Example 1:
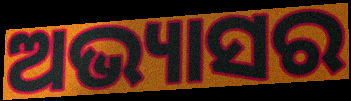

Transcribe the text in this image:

ଅଭ୍ୟାସର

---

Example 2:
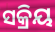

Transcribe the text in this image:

ସକ୍ରିୟ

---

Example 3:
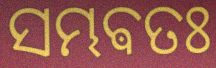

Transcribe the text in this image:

ସମ୍ଭଵତଃ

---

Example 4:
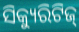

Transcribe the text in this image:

ସିକ୍ୟୁରିଟିଜ୍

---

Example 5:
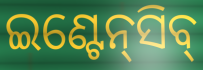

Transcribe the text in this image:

ଇଣ୍ଟେନ୍‍ସିବ୍